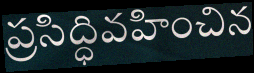
ప్రసిద్ధివహించిన